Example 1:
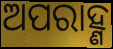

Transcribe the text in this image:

ଅପରାହ୍ଣ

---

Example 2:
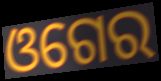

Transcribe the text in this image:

ଓଗେର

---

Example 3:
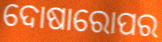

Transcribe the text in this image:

ଦୋଷାରୋପର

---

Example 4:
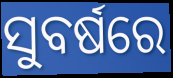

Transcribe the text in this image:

ସୁବର୍ଷରେ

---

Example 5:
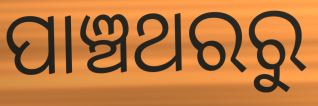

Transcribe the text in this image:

ପାଞ୍ଚଥରରୁ